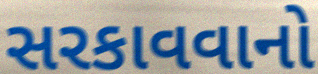
સરકાવવાનો